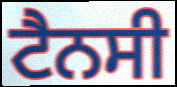
ਟੈਨਸੀ